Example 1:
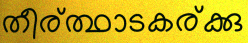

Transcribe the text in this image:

തീര്ത്ഥാടകര്ക്കു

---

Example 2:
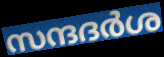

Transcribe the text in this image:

സന്ദദർശ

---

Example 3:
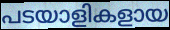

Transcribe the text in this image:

പടയാളികളായ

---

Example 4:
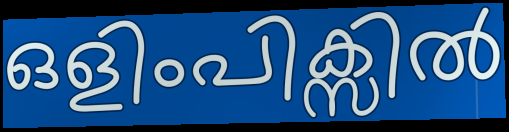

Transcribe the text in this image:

ഒളിംപിക്സിൽ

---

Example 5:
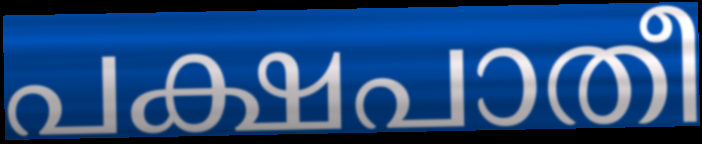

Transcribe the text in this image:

പക്ഷപാതീ